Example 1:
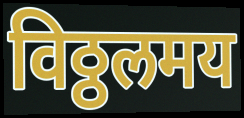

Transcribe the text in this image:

विठ्ठलमय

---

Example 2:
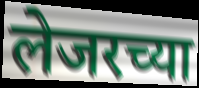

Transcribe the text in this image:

लेजरच्या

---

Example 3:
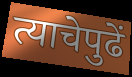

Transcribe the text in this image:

त्याचेपुढें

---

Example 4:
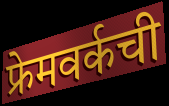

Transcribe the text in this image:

फ्रेमवर्कची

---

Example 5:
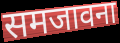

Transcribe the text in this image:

समजावना